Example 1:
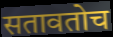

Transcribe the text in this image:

सतावतोच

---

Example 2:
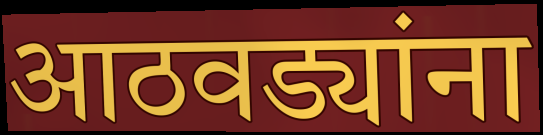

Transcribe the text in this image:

आठवड्यांना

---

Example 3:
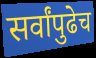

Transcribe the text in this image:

सर्वांपुढेच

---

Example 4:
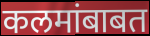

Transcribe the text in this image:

कलमांबाबत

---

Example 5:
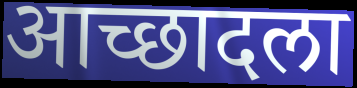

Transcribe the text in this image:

आच्छादला